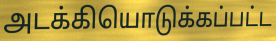
அடக்கியொடுக்கப்பட்ட